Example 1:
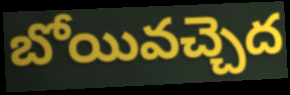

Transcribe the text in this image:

బోయివచ్చెద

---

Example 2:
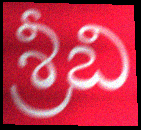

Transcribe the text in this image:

శ్రీబి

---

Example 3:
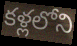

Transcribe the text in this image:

కళ్లలోని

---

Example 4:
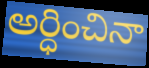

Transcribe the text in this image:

అర్ధించినా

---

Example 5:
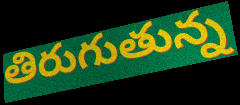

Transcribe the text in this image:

తిరుగుతున్న